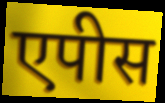
एपीस